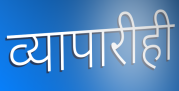
व्यापारीही